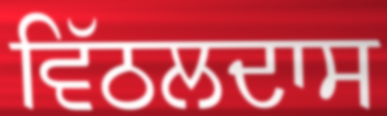
ਵਿੱਠਲਦਾਸ